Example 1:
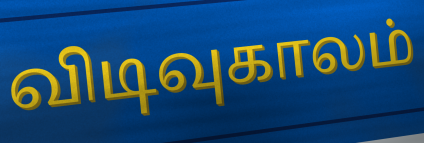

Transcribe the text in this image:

விடிவுகாலம்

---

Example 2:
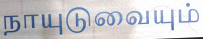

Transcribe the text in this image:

நாயுடுவையும்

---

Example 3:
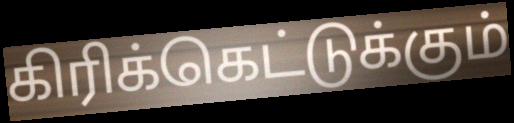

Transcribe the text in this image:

கிரிக்கெட்டுக்கும்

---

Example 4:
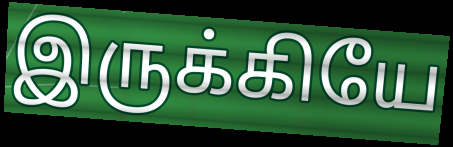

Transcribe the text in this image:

இருக்கியே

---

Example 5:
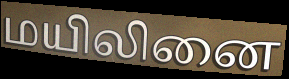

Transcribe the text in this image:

மயிலினை